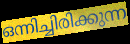
ഒന്നിച്ചിരിക്കുന്ന